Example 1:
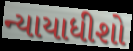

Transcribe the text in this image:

ન્યાયાધીશો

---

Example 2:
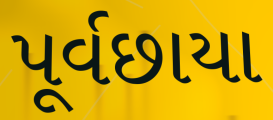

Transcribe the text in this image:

પૂર્વછાયા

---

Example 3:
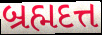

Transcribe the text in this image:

બ્રહ્મદત્ત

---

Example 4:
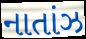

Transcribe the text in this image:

નાતાંઝ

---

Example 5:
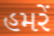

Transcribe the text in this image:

હમરેં